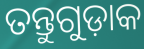
ତନ୍ତୁଗୁଡ଼ାକ